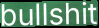
bullshit